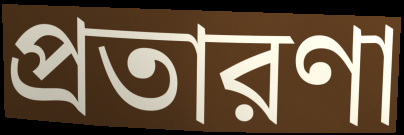
প্রতারণা